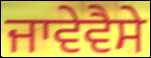
ਜਾਵੇਵੈਸੇ